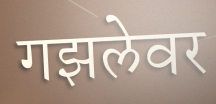
गझलेवर